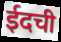
ईदची